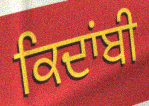
ਕਿਦਾਂਬੀ